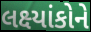
લક્ષ્યાંકોને